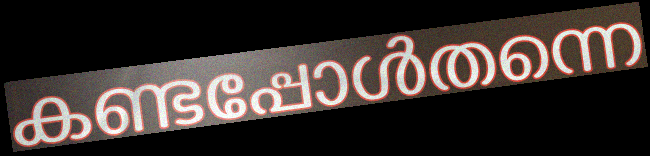
കണ്ടപ്പോൾതന്നെ